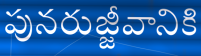
పునరుజ్జీవానికి